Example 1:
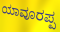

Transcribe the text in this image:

ಯಾವೂರಪ್ಪ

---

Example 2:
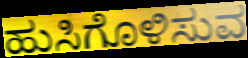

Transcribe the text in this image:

ಹುಸಿಗೊಳಿಸುವ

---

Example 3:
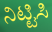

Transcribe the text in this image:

ನಿಟ್ಟಿಸಿ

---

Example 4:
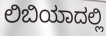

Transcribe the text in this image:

ಲಿಬಿಯಾದಲ್ಲಿ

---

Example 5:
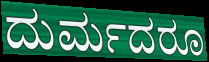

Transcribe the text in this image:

ದುರ್ಮದರೂ